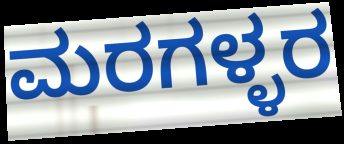
ಮರಗಳ್ಳರ